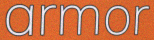
armor